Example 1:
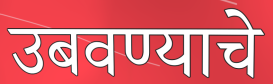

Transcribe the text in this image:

उबवण्याचे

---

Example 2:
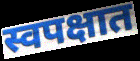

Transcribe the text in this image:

स्वपक्षात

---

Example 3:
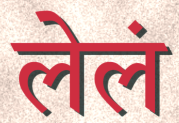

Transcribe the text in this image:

लेलं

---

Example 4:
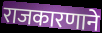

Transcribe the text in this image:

राजकारणाने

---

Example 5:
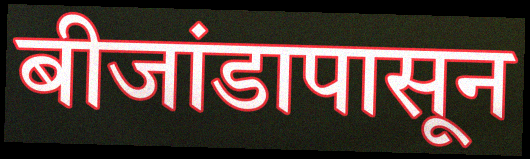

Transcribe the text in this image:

बीजांडापासून